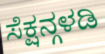
ಸೆಕ್ಷನ್ಗಳಡಿ